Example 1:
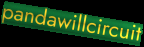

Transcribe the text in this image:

pandawillcircuit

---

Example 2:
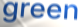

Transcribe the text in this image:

green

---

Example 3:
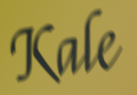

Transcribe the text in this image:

Kale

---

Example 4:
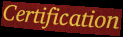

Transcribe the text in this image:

Certification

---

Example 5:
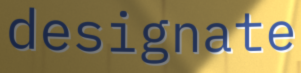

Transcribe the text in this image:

designate